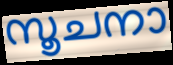
സൂചനാ